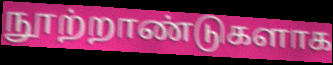
நூற்றாண்டுகளாக